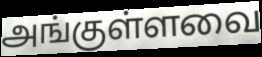
அங்குள்ளவை